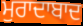
ਮੁਰਾਦਾਬਾਦ